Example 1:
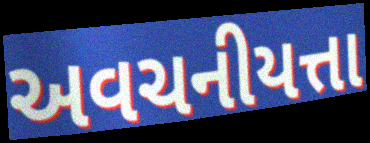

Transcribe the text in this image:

અવચનીયત્તા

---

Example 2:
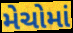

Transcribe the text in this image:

મેચોમાં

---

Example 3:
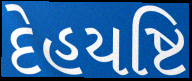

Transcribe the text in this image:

દેહયષ્ટિ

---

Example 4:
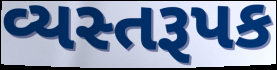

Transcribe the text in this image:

વ્યસ્તરૂપક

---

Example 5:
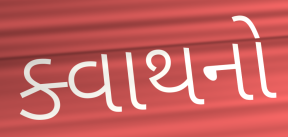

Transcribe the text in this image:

ક્વાથનો